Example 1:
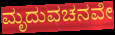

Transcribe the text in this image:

ಮೃದುವಚನವೇ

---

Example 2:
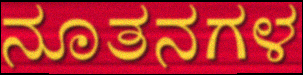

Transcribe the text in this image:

ನೂತನಗಳ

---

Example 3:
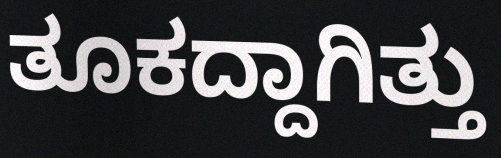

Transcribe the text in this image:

ತೂಕದ್ದಾಗಿತ್ತು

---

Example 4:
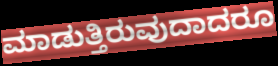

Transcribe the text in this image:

ಮಾಡುತ್ತಿರುವುದಾದರೂ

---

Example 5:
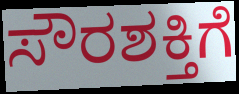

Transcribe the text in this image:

ಸೌರಶಕ್ತಿಗೆ